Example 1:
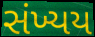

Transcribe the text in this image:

સંખ્યય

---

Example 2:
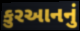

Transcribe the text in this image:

કુરઆનનું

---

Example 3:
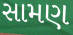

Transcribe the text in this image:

સામણ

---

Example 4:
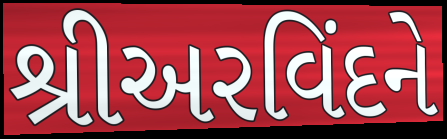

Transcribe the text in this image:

શ્રીઅરવિંદને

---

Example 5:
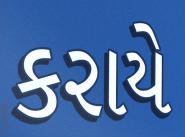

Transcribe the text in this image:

કરાયે